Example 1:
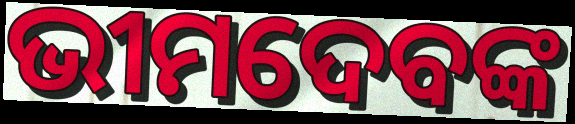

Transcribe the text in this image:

ଭୀମଦେବଙ୍କ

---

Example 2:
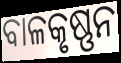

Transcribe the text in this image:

ବାଳକୃଷ୍ଣନ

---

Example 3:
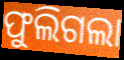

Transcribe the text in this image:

ଫୁଲିଗଲା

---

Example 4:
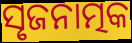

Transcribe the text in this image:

ସୃଜନାତ୍ମକ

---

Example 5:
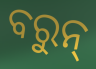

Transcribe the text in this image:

ବରୁନ୍